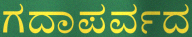
ಗದಾಪರ್ವದ